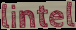
lintel